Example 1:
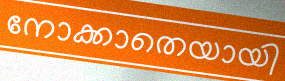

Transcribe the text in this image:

നോക്കാതെയായി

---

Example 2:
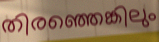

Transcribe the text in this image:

തിരഞ്ഞെങ്കിലും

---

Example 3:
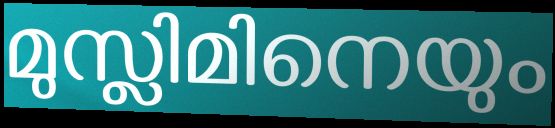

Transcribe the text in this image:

മുസ്ലിമിനെയും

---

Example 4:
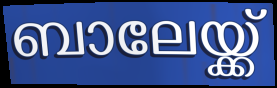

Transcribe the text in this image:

ബാലേയ്ക്ക്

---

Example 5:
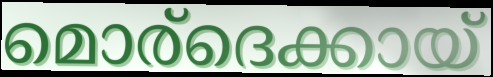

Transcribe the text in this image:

മൊര്ദെക്കായ്